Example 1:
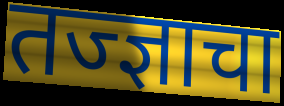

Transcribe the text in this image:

तज्ज्ञाचा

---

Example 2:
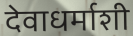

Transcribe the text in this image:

देवाधर्माशी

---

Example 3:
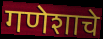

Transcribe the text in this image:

गणेशाचे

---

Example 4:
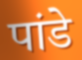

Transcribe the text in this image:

पांडे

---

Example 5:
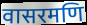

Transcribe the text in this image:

वासरमणि